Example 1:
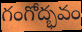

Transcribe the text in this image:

గంగోద్భవం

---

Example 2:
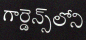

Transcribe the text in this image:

గార్డెన్స్‌లోని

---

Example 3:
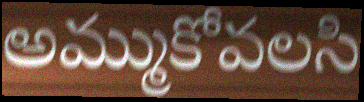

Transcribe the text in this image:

అమ్ముకోవలసి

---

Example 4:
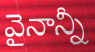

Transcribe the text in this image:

వైనాన్నీ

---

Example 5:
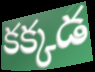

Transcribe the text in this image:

కక్కడ